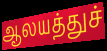
ஆலயத்துச்